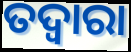
ତଦ୍ୱାରା